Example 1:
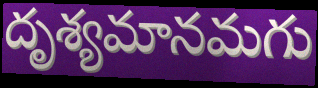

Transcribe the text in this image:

దృశ్యమానమగు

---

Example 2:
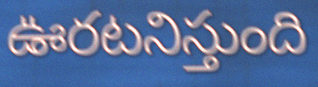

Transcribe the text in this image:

ఊరటనిస్తుంది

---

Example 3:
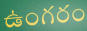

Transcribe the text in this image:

ఉంగరం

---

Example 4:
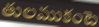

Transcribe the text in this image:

తులముకంటె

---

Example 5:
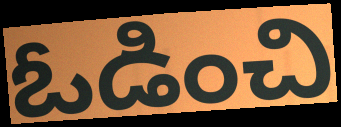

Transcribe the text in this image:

ఓడించి